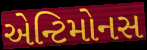
એન્ટિમોનસ